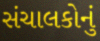
સંચાલકોનું